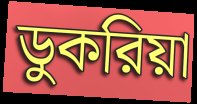
ডুকরিয়া